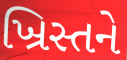
ખ્રિસ્તને